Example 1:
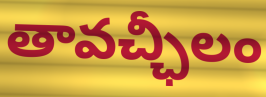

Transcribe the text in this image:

తావచ్ఛీలం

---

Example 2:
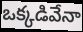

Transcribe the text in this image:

ఒక్కడివేనా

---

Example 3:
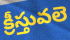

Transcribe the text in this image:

క్రీస్తువలె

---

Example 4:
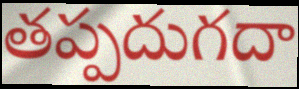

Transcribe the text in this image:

తప్పదుగదా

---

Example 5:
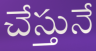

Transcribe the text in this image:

చేస్తునే